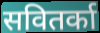
सवितर्का